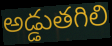
అడ్డుతగిలి